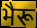
भैरू